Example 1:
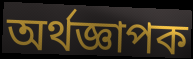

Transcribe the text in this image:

অর্থজ্ঞাপক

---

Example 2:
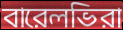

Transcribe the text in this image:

বারেলভিরা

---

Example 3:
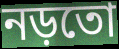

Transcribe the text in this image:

নড়তো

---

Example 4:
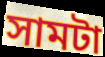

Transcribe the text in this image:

সামটা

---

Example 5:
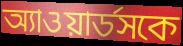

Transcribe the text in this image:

অ্যাওয়ার্ডসকে